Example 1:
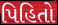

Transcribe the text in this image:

પિહિતો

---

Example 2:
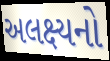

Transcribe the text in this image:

અલક્ષ્યનો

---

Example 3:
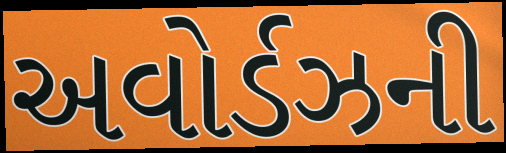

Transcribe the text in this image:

અવોર્ડઝની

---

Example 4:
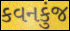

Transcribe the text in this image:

કવનકુંજ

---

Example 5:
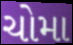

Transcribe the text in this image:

ચોમા